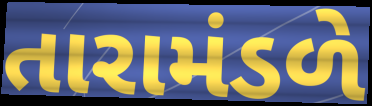
તારામંડળે